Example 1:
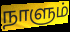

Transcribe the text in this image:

நாளும்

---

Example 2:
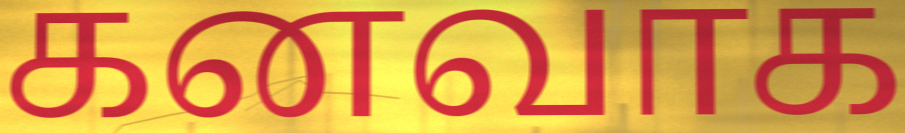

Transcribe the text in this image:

கனவாக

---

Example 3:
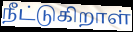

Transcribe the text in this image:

நீட்டுகிறாள்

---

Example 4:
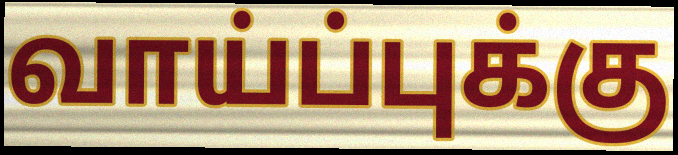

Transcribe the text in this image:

வாய்ப்புக்கு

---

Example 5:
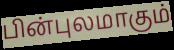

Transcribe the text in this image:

பின்புலமாகும்